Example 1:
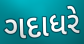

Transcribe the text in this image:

ગદાધરે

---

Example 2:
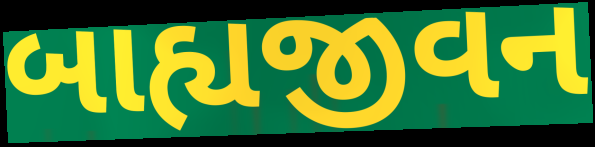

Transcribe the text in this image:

બાહ્યજીવન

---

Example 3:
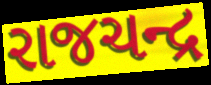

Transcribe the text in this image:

રાજચન્દ્ર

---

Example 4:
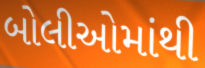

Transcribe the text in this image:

બોલીઓમાંથી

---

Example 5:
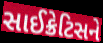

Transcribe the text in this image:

સાઈક્રેટિસને